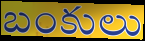
బంకులు